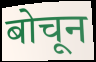
बोचून